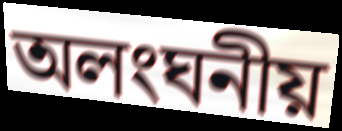
অলংঘনীয়